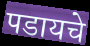
पडायचे